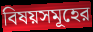
বিষয়সমূহের